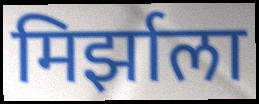
मिर्झाला